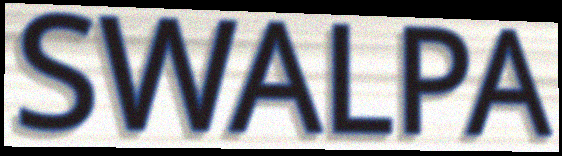
SWALPA